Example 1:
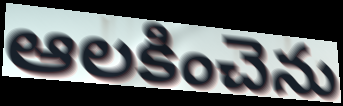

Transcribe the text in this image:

ఆలకించెను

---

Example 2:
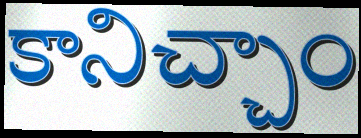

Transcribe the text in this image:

కానిచ్చాం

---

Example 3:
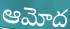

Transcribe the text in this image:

ఆమోద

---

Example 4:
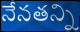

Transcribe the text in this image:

నేనతన్ని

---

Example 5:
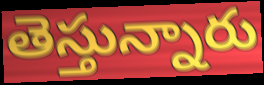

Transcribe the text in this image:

తెస్తున్నారు